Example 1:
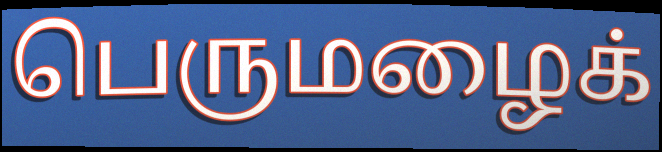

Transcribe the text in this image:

பெருமழைக்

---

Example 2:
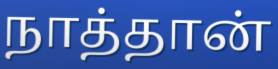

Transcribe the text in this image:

நாத்தான்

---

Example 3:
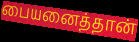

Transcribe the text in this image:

பையனைத்தான்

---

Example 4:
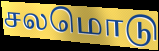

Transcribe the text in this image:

சலமொடு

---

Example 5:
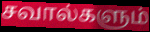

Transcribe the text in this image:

சவால்களும்